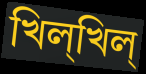
খিল্খিল্